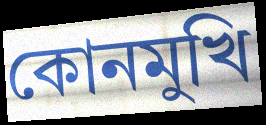
কোনমুখি